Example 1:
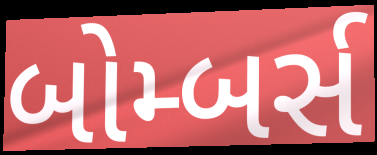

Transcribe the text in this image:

બોમ્બર્સ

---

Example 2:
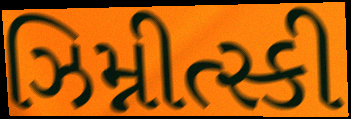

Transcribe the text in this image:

ઝિમ્નીત્સ્કી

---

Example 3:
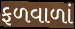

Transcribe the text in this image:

ફળવાળાં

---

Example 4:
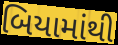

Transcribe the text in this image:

બિયામાંથી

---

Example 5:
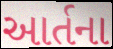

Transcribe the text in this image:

આર્તના